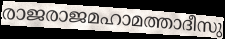
രാജരാജമഹാമത്താദീസു